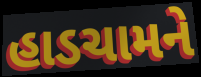
હાડચામને